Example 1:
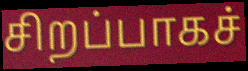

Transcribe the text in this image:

சிறப்பாகச்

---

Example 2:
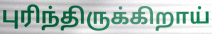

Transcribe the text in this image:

புரிந்திருக்கிறாய்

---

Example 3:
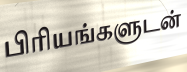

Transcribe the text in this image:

பிரியங்களுடன்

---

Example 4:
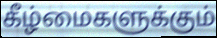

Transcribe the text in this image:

கீழ்மைகளுக்கும்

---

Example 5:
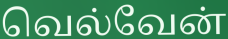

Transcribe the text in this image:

வெல்வேன்